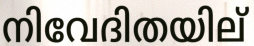
നിവേദിതയില്